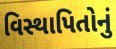
વિસ્થાપિતોનું